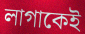
লাগাকেই